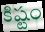
కిష్టం